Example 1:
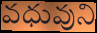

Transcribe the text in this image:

వధువుని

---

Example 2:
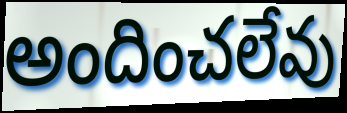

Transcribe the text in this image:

అందించలేవు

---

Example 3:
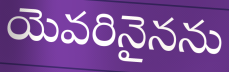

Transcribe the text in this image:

యెవరినైనను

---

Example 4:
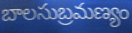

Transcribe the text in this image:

బాలసుబ్రమణ్యం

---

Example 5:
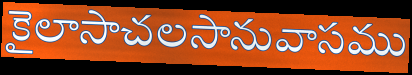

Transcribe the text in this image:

కైలాసాచలసానువాసము